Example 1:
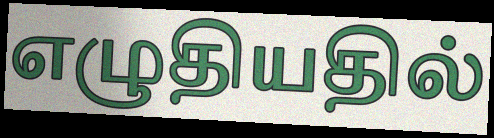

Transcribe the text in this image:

எழுதியதில்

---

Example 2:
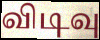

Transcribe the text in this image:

விடிவு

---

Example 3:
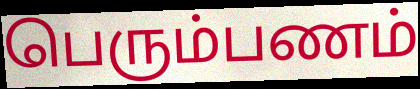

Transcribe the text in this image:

பெரும்பணம்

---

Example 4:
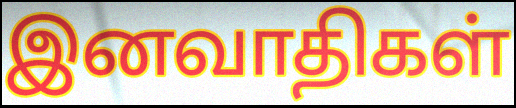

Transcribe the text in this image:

இனவாதிகள்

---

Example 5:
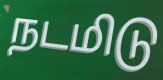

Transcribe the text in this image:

நடமிடு